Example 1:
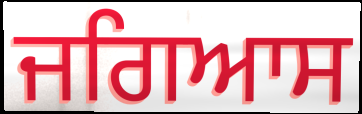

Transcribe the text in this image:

ਜਗਿਆਸ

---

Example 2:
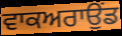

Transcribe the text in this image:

ਵਾਕਅਰਾਉਂਡ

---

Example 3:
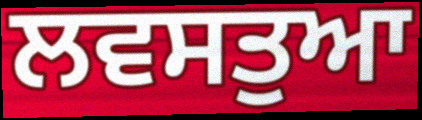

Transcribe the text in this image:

ਲਵਸਤੁਆ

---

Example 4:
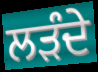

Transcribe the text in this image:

ਲੜੰਦੇ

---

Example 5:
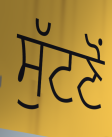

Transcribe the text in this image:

ਸੁੱਟਣੋਂ